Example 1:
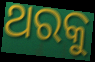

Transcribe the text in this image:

ଥରକୁ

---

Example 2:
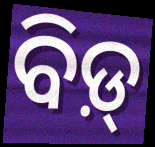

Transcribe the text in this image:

ବିଡ଼୍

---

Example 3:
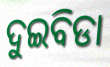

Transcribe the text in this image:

ଦୁଇବିଡା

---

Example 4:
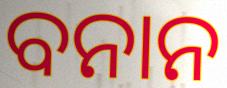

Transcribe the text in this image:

ବନାନ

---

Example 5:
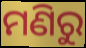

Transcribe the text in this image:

ମଣିରୁ